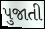
પુજાતી